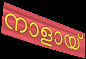
നാളായ്